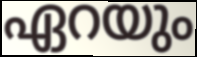
ഏറയും